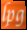
lpg